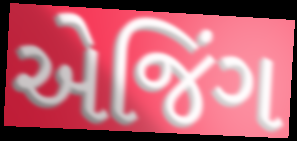
એજિંગ